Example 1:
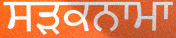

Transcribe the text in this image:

ਸਡ਼ਕਨਾਮਾ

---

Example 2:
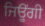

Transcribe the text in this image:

ਜਿਊਂਗੀ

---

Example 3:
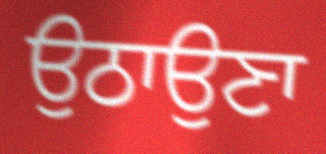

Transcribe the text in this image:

ਉਠਾਉਣਾ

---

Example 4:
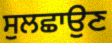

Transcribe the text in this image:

ਸੁਲਛਾਉਣ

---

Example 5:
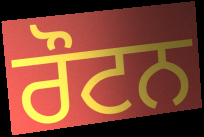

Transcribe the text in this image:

ਰੌਟਨ